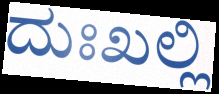
ದುಃಖಲ್ಲಿ